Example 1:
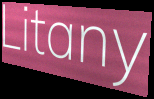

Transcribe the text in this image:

Litany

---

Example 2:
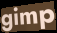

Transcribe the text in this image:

gimp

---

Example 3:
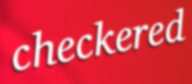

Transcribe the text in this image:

checkered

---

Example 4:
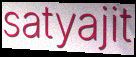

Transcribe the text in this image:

satyajit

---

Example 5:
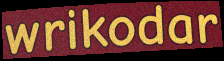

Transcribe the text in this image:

wrikodar